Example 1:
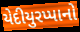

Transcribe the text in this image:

યેદીયુરપ્પાનો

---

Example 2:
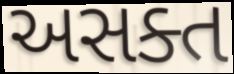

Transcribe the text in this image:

અસક્ત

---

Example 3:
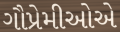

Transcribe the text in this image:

ગૌપ્રેમીઓએ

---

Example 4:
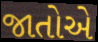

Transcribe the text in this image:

જાતોએ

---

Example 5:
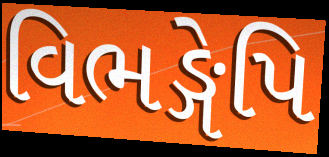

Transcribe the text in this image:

વિભઙ્ગેપિ